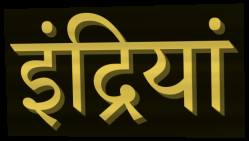
इंद्रियां